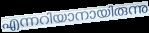
എന്നറിയാനായിരുന്നു